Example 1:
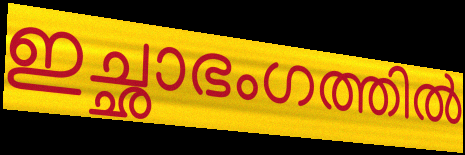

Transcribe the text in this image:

ഇച്ഛാഭംഗത്തിൽ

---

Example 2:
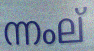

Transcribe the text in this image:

ന്നംല്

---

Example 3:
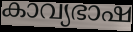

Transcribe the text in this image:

കാവ്യഭാഷ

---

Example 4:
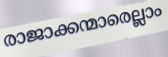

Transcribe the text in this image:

രാജാക്കന്മാരെല്ലാം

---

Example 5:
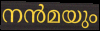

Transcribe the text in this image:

നൻമയും